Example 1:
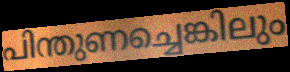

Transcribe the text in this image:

പിന്തുണച്ചെങ്കിലും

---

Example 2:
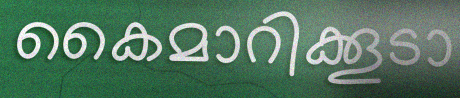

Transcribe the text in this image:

കൈമാറിക്കൂടാ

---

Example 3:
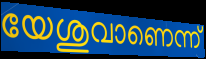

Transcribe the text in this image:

യേശുവാണെന്ന്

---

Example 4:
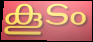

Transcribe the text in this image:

കൂടം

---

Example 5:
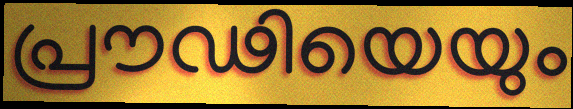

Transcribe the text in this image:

പ്രൗഢിയെയും